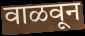
वाळवून